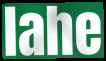
lahe